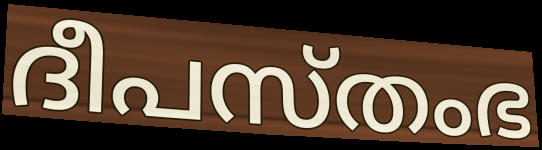
ദീപസ്തംഭ